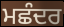
ਮਛੰਦਰ